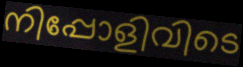
നിപ്പോളിവിടെ